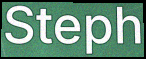
Steph